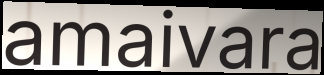
amaivara